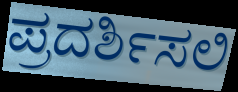
ಪ್ರದರ್ಶಿಸಲಿ